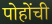
पोहोंची